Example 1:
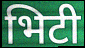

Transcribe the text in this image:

भिटी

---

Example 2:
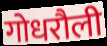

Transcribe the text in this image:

गोधरौली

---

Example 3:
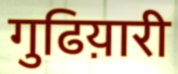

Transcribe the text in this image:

गुढिय़ारी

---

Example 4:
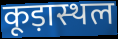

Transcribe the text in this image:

कूड़ास्थल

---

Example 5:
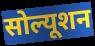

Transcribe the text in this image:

सोल्यूशन